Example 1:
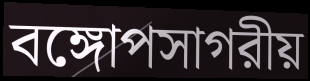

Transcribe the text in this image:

বঙ্গোপসাগরীয়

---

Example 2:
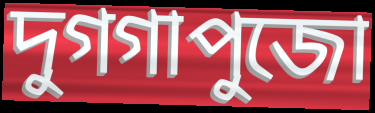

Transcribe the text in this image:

দুগগাপুজো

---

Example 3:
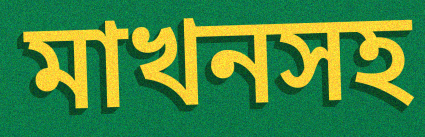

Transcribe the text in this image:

মাখনসহ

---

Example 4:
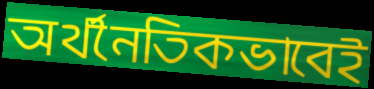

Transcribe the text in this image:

অর্থনৈতিকভাবেই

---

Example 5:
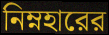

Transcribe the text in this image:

নিম্নহারের